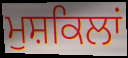
ਮੁਸ਼ਕਿਲਾਂ